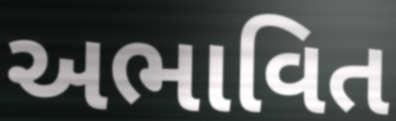
અભાવિત